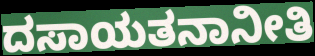
ದಸಾಯತನಾನೀತಿ